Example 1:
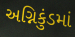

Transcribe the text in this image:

અગ્નિકુંડમાં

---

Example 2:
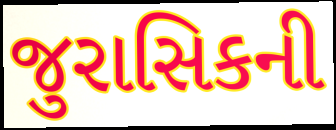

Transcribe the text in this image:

જુરાસિકની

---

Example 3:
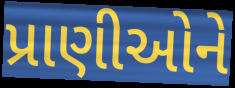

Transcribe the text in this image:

પ્રાણીઓને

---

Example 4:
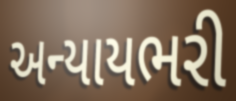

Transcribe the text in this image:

અન્યાયભરી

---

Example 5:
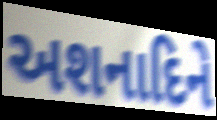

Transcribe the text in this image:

અશનાદિને